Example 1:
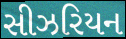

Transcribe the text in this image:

સીઝરિયન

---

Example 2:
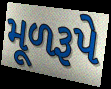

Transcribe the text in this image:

મૂળરૂપે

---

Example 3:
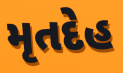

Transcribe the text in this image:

મૃતદેહ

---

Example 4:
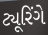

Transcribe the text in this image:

ટ્યૂરિંગે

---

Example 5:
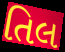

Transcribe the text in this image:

તિલ